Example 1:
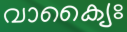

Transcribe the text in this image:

വാക്യൈഃ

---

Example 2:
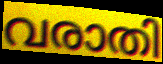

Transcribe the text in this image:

വരാതി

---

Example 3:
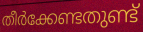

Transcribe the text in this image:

തീർക്കേണ്ടതുണ്ട്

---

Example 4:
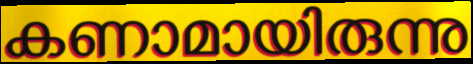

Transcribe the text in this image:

കണാമായിരുന്നു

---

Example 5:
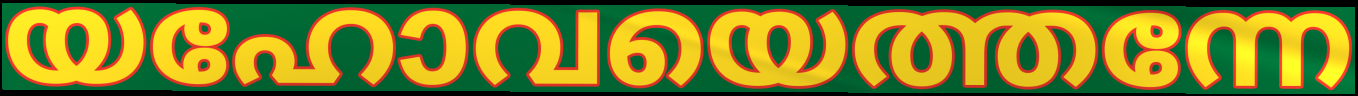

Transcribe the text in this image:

യഹോവയെത്തന്നേ